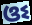
ଓଽ